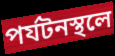
পর্যটনস্থলে